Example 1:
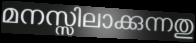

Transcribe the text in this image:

മനസ്സിലാക്കുന്നതു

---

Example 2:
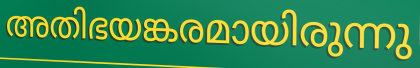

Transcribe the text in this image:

അതിഭയങ്കരമായിരുന്നു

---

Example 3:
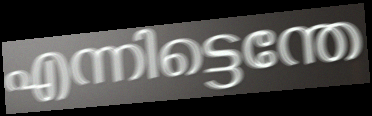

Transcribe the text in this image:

എന്നിട്ടെന്തേ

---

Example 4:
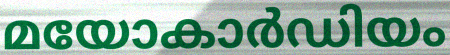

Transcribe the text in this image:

മയോകാർഡിയം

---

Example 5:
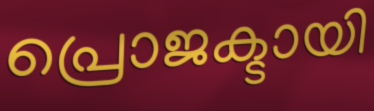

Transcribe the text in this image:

പ്രൊജക്ടായി